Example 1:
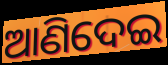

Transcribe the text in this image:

ଆଣିଦେଇ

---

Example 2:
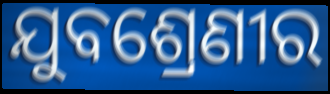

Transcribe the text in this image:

ଯୁବଶ୍ରେଣୀର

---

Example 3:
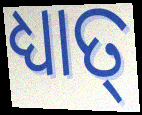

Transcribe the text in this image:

ଧ୍ୟାତ୍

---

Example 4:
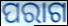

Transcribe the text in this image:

ପରାଗ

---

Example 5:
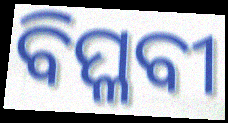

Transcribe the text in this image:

ବିପ୍ଳବୀ